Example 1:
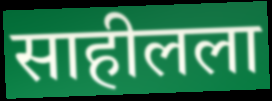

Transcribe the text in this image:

साहीलला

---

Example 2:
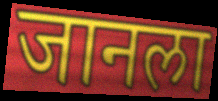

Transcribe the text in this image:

जानला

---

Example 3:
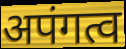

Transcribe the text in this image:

अपंगत्व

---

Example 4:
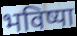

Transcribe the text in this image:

भविष्या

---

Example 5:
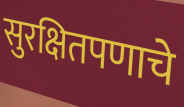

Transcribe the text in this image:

सुरक्षितपणाचे